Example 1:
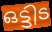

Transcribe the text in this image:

ഒട്ടിട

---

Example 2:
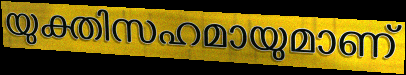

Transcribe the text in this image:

യുക്തിസഹമായുമാണ്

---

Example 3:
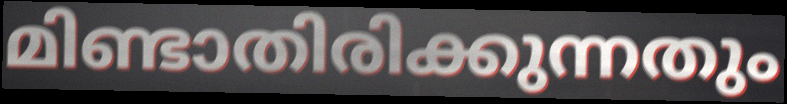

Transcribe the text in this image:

മിണ്ടാതിരിക്കുന്നതും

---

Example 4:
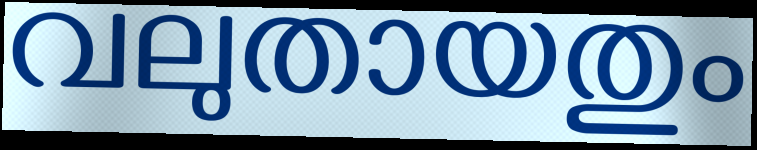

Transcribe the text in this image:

വലുതായതും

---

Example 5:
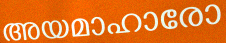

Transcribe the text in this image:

അയമാഹാരോ